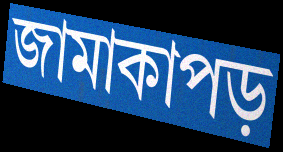
জামাকাপড়